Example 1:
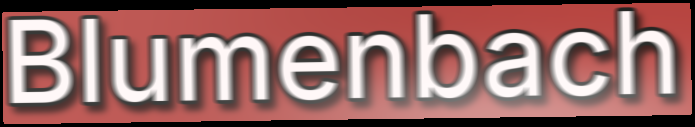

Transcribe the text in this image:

Blumenbach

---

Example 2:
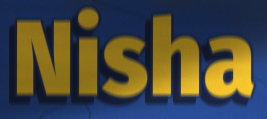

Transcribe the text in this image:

Nisha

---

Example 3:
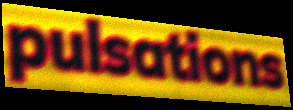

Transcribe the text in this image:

pulsations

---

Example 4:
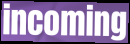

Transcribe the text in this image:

incoming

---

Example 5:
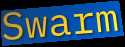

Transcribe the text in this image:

Swarm